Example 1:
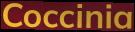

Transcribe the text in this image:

Coccinia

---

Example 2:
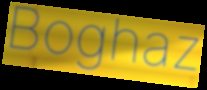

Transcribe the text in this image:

Boghaz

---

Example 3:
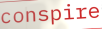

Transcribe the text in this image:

conspire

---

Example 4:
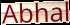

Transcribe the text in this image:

Abhal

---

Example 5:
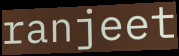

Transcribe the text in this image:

ranjeet